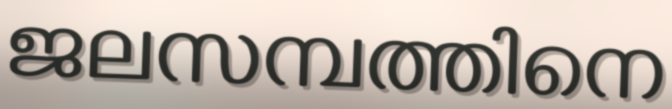
ജലസമ്പത്തിനെ